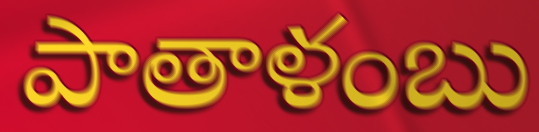
పాతాళంబు